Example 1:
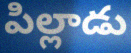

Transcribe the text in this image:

పిల్లాడు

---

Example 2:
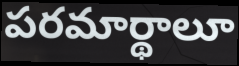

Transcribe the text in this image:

పరమార్థాలూ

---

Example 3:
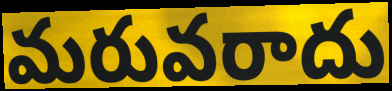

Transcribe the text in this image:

మరువరాదు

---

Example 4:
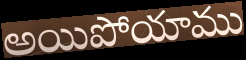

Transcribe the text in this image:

అయిపోయాము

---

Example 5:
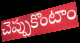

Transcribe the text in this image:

చెప్పుకొంటాం